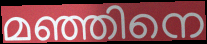
മഞ്ഞിനെ